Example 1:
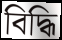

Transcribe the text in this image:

বিদ্ধি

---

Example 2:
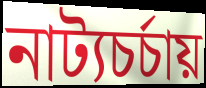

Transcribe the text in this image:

নাট্যচর্চায়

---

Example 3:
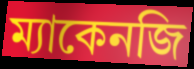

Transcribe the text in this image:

ম্যাকেনজি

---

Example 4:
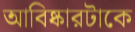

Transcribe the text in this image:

আবিষ্কারটাকে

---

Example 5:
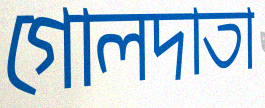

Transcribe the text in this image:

গোলদাতা